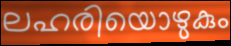
ലഹരിയൊഴുകും